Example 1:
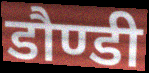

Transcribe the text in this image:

डौण्डी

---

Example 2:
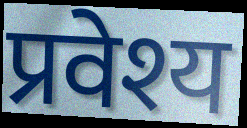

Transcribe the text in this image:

प्रवेश्य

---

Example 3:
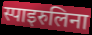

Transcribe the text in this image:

स्पाइरुलिना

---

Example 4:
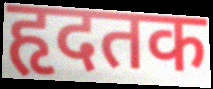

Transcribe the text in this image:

हृदतक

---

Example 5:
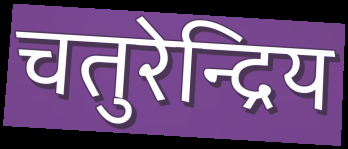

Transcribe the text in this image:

चतुरेन्द्रिय